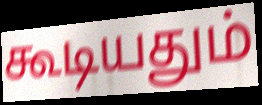
கூடியதும்